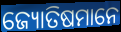
ଜ୍ୟୋତିଷମାନେ